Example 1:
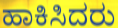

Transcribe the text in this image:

ಹಾಕಿಸಿದರು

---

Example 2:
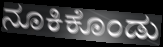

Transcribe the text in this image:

ನೂಕಿಕೊಂಡು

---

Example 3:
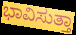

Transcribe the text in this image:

ಭಾವಿಸುತ್ತಾ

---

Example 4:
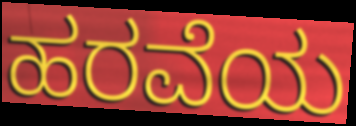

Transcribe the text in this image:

ಹರವೆಯ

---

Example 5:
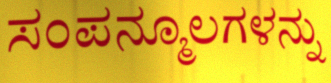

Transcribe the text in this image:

ಸಂಪನ್ಮೂಲಗಳನ್ನು